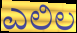
ಎಲಿಲ